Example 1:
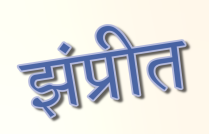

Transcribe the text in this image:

झंप्रीत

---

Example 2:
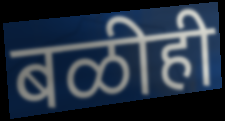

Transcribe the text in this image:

बळीही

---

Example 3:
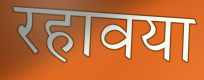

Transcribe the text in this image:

रहावया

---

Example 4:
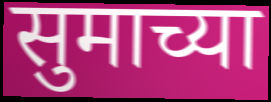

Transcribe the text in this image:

सुमाच्या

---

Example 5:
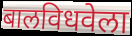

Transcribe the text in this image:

बालविधवेला